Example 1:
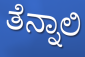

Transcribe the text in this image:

ತೆನ್ನಾಲಿ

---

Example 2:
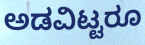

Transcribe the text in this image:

ಅಡವಿಟ್ಟರೂ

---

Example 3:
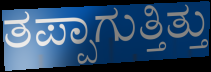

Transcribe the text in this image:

ತಪ್ಪಾಗುತ್ತಿತ್ತು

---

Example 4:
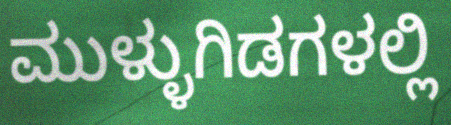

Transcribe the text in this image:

ಮುಳ್ಳುಗಿಡಗಳಲ್ಲಿ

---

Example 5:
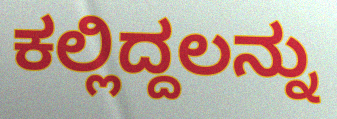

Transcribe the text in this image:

ಕಲ್ಲಿದ್ದಲನ್ನು